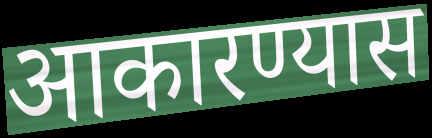
आकारण्यास